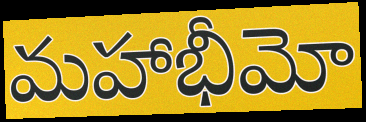
మహాభీమో